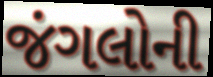
જંગલોની